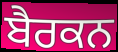
ਬੈਰਕਨ